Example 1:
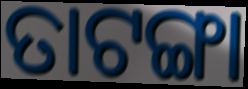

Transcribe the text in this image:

ତାଟଙ୍ଗା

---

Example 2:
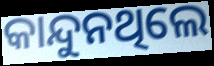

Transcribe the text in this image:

କାନ୍ଦୁନଥିଲେ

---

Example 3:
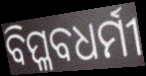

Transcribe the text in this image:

ବିପ୍ଳବଧର୍ମୀ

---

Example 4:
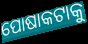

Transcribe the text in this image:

ପୋଷାକଟାକୁ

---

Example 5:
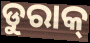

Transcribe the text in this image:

ଡୁରାକ୍